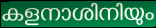
കളനാശിനിയും